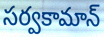
సర్వకామాన్